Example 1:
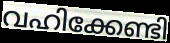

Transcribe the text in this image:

വഹിക്കേണ്ടി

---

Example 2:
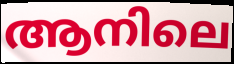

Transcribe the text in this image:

ആനിലെ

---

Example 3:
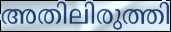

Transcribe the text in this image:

അതിലിരുത്തി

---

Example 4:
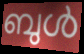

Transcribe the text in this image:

ബുൾ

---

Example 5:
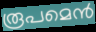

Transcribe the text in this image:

രൂപമെൻ